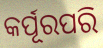
କର୍ପୂରପରି